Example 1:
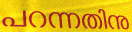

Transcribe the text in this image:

പറന്നതിനു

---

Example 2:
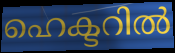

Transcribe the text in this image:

ഹെക്ടറിൽ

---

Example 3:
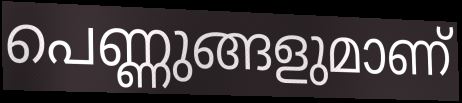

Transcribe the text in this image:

പെണ്ണുങ്ങളുമാണ്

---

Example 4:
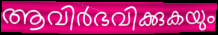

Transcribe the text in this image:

ആവിർഭവിക്കുകയും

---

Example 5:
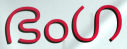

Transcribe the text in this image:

ഭംഗ